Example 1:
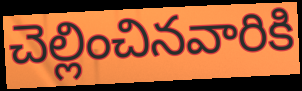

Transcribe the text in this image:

చెల్లించినవారికి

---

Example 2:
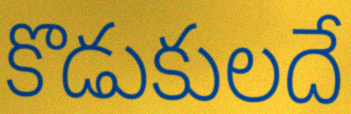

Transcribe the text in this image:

కొడుకులదే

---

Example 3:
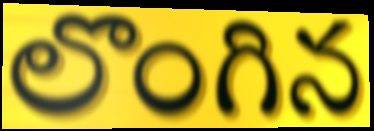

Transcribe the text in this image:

లొంగిన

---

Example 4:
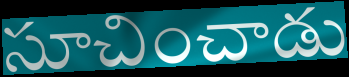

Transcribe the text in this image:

సూచించాడు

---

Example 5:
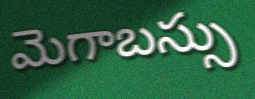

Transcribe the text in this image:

మెగాబస్సు